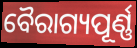
ବୈରାଗ୍ୟପୂର୍ଣ୍ଣ